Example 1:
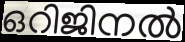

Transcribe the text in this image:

ഒറിജിനൽ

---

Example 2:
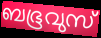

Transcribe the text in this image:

ബഭൂവുസ്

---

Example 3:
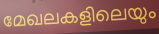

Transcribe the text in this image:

മേഖലകളിലെയും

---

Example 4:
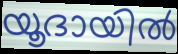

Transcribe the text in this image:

യൂദായിൽ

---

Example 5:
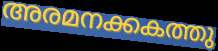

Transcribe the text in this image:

അരമനക്കകത്തു